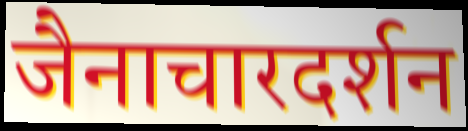
जैनाचारदर्शन